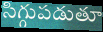
సిగ్గుపడుతూ